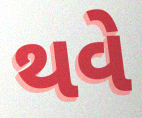
થવે